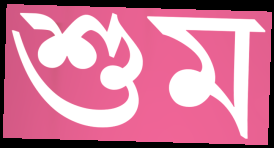
শুম